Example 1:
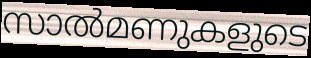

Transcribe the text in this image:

സാൽമണുകളുടെ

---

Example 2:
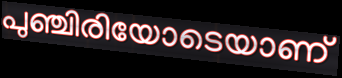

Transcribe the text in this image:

പുഞ്ചിരിയോടെയാണ്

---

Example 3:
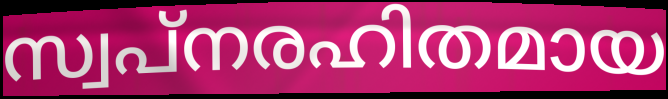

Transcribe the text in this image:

സ്വപ്നരഹിതമായ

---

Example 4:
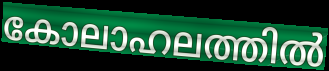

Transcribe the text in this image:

കോലാഹലത്തിൽ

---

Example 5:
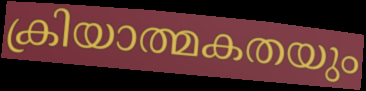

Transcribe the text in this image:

ക്രിയാത്മകതയും